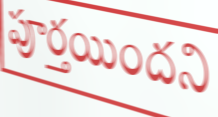
పూర్తయిందని